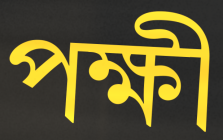
পক্ষী